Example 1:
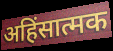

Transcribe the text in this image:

अहिंसात्मक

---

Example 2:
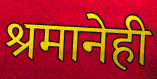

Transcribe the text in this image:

श्रमानेही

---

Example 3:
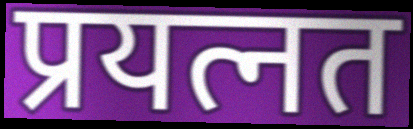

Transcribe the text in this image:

प्रयत्नत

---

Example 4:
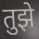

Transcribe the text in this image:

तुझे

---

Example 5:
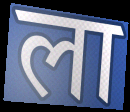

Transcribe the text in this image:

ला